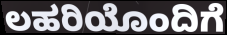
ಲಹರಿಯೊಂದಿಗೆ